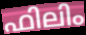
ഫിലിം